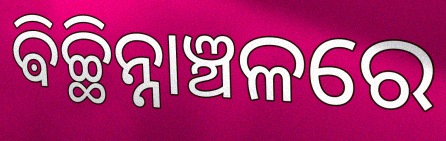
ଵିଚ୍ଛିନ୍ନାଞ୍ଚଳରେ